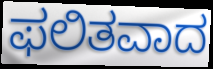
ಫಲಿತವಾದ